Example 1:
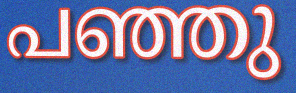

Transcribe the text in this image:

പഞ്ഞു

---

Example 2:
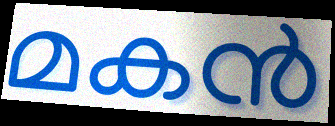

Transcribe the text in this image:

മകൻ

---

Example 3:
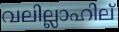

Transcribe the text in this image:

വലില്ലാഹില്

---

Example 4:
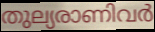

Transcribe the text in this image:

തുല്യരാണിവർ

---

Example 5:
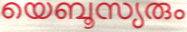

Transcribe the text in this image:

യെബൂസ്യരും